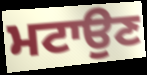
ਮਟਾਉਣ